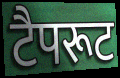
टैपरूट